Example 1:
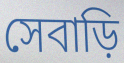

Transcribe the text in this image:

সেবাড়ি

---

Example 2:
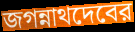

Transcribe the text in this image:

জগন্নাথদেবের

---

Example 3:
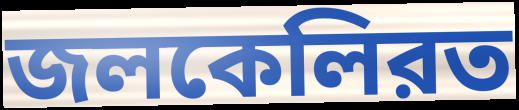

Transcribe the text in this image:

জলকেলিরত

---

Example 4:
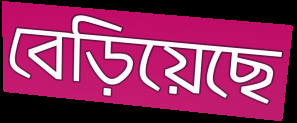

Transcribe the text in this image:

বেড়িয়েছে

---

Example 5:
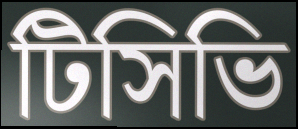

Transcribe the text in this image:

টিসিভি